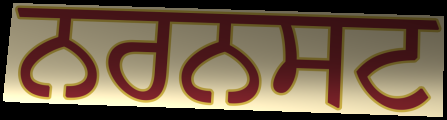
ਨਰਨਸਟ